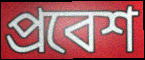
প্ৰবেশ